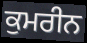
ਕੁਮਰੀਨ